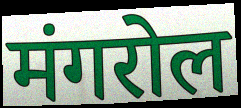
मंगरोल